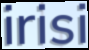
irisi